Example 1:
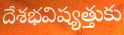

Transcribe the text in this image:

దేశభవిష్యత్తుకు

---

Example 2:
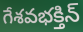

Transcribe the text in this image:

గేశవభక్తిన్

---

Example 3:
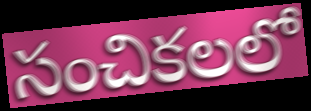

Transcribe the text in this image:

సంచికలలో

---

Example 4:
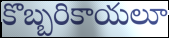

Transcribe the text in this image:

కొబ్బరికాయలూ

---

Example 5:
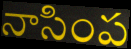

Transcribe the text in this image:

నాసింప